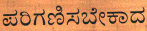
ಪರಿಗಣಿಸಬೇಕಾದ